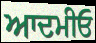
ਆਦਮੀਓ